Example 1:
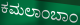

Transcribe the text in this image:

ಕಮಲಾಂಬಾಂ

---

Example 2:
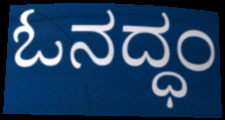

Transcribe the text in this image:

ಓನದ್ಧಂ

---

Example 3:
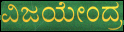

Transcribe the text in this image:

ವಿಜಯೇಂದ್ರ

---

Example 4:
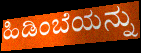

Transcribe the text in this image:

ಹಿಡಿಂಬೆಯನ್ನು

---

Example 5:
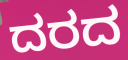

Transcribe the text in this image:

ದರದ